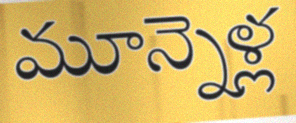
మూన్నెళ్ల